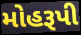
મોહરૂપી